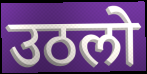
उठलो